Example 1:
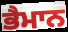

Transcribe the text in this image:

ਭੈਮਾਨ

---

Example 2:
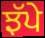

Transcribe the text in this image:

ਝੱਪੇ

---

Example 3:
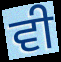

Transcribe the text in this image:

ਵੀ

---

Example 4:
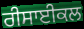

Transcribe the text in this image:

ਰੀਸਾਈਕਲ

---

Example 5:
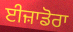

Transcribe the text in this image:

ਈਜ਼ਾਡੋਰਾ